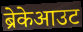
ब्रेकेआउट